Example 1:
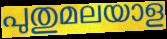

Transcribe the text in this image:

പുതുമലയാള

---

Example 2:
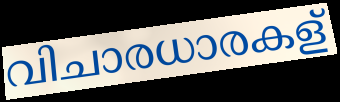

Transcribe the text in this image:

വിചാരധാരകള്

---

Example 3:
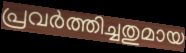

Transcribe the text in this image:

പ്രവർത്തിച്ചതുമായ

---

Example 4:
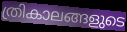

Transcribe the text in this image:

ത്രികാലങ്ങളുടെ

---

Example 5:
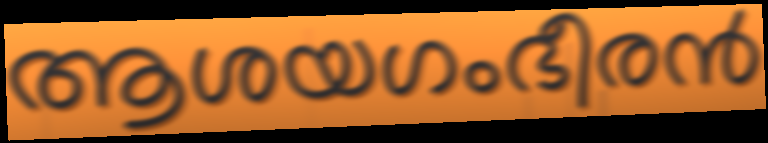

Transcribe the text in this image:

ആശയഗംഭീരൻ